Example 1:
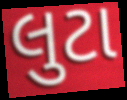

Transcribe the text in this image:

લુટા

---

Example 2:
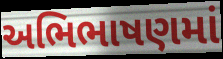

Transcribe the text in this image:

અભિભાષણમાં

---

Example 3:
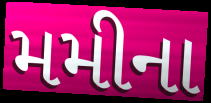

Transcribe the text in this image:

મમીના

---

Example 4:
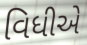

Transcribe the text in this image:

વિધીએ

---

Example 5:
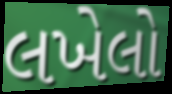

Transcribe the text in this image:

લખેલો